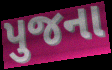
પુજના